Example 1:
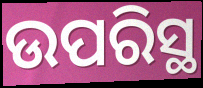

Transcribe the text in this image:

ଉପରିସ୍ଥ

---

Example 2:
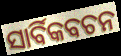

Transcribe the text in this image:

ସାର୍ବିକବଚନ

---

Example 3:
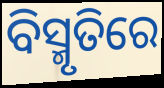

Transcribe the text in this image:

ବିସ୍ମୃତିରେ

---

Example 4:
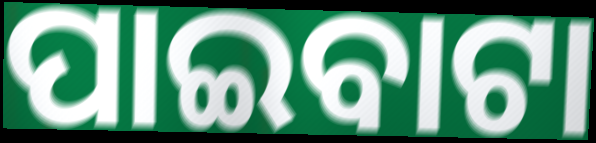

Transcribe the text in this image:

ପାଇବାଟା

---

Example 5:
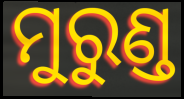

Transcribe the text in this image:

ମୁରୁଣ୍ଡ